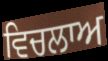
ਵਿਚਲਾਅ